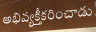
అభివ్యక్తీకరించాడు